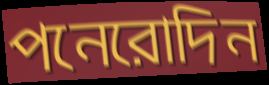
পনেরোদিন